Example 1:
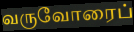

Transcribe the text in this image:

வருவோரைப்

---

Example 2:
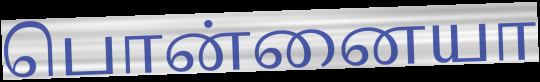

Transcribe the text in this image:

பொன்னையா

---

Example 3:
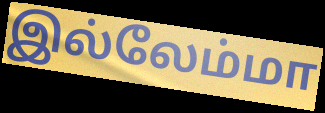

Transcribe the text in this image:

இல்லேம்மா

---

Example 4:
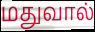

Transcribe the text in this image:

மதுவால்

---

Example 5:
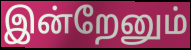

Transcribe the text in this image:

இன்றேனும்